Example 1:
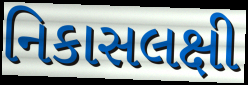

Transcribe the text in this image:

નિકાસલક્ષી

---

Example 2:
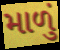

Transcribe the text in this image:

માળું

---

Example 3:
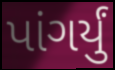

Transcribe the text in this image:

પાંગર્યું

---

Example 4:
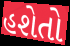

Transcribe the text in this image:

હશેતો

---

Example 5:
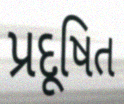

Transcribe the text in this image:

પ્રદૂષિત